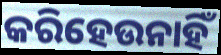
କରିହେଉନାହିଁ